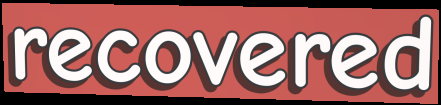
recovered